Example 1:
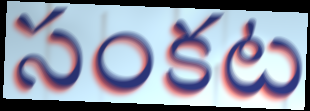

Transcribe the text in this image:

సంకట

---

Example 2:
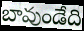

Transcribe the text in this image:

బావుండేది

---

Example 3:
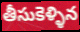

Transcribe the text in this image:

తీసుకెళ్ళిన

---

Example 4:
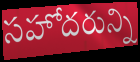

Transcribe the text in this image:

సహోదరున్ని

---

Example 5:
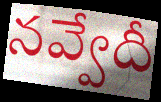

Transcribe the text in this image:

నవ్వేదీ